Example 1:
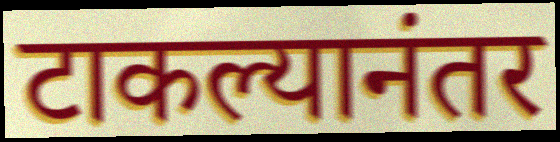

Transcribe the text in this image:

टाकल्यानंतर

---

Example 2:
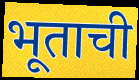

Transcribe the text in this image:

भूताची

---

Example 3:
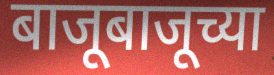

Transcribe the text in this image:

बाजूबाजूच्या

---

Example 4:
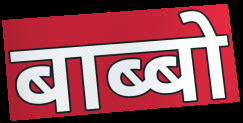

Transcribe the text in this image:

बाब्बो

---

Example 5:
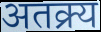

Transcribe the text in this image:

अतक्र्य